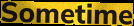
Sometime